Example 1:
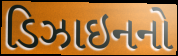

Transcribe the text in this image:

ડિઝાઇનનો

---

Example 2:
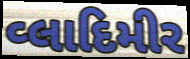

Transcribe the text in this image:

વ્લાદિમીર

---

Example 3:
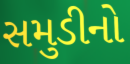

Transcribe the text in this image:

સમુડીનો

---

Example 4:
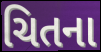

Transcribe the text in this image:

ચિતના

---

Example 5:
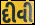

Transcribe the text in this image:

દીવી